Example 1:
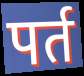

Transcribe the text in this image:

पर्त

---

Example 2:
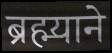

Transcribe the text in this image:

ब्रह्म्याने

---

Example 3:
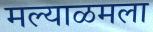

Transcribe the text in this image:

मल्याळमला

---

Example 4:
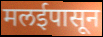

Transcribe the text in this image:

मलईपासून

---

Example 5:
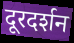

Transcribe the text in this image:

दूरदर्शन